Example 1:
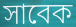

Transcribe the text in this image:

সাবেক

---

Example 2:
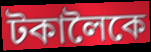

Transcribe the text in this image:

টকালৈকে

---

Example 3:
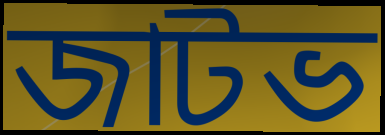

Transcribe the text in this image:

জাটভ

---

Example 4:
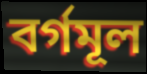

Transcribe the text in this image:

বৰ্গমূল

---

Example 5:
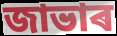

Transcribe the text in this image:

জাভাৰ